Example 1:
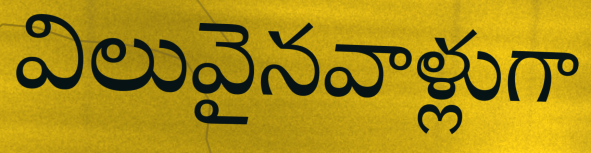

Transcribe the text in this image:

విలువైనవాళ్లుగా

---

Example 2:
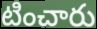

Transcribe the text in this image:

టించారు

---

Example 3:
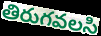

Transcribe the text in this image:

తిరుగవలసి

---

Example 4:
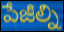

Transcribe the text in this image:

పేజీల్ని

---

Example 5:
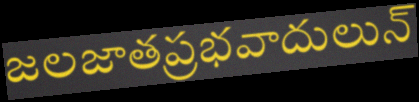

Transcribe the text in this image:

జలజాతప్రభవాదులున్